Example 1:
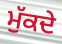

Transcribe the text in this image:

ਮੁੱਕਦੇ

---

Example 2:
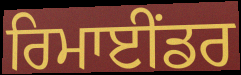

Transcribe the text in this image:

ਰਿਮਾਈਂਡਰ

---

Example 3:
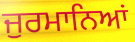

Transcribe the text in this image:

ਜੁਰਮਾਨਿਆਂ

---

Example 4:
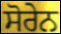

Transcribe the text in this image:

ਸੋਰੇਨ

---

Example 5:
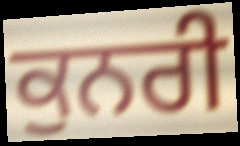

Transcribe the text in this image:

ਕੁਨਰੀ